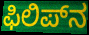
ಫಿಲಿಪ್‌ನ